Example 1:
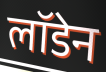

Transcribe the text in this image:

लॉडेन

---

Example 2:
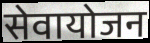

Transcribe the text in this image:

सेवायोजन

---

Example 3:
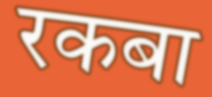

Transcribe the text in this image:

रकबा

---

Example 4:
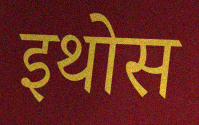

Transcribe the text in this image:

इथोस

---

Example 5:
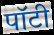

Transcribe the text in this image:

पॉटी